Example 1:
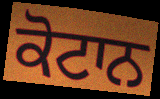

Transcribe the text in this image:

ਕੋਟਾਨ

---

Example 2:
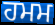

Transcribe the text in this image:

ਹਮਮ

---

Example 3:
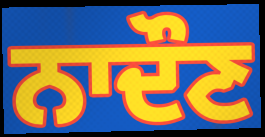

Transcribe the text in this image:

ਨਾਦੌਣ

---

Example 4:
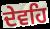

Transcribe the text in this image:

ਦੇਵਹਿ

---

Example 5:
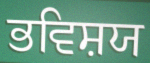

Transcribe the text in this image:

ਭਵਿਸ਼ਯ